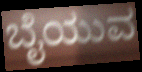
ಬೈಯುವ